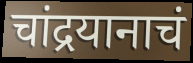
चांद्रयानाचं